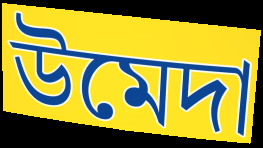
উমেদা